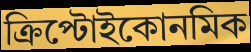
ক্রিপ্টোইকোনমিক